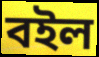
বইল